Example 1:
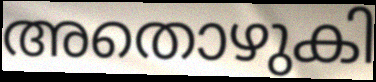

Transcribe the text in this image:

അതൊഴുകി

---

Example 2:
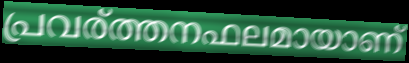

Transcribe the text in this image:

പ്രവര്ത്തനഫലമായാണ്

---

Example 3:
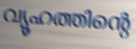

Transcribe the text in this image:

വ്യൂഹത്തിന്റെ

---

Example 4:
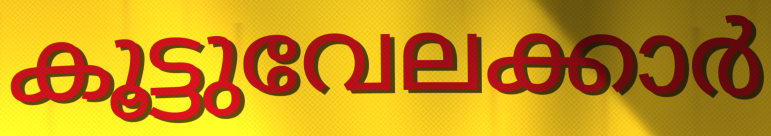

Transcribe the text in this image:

കൂട്ടുവേലക്കാർ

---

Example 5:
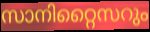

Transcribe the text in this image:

സാനിറ്റൈസറും